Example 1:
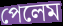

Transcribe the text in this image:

পেলেম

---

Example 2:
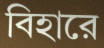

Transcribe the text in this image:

বিহারে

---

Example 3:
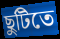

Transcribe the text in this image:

ছুটিতে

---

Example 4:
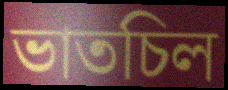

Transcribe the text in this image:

ভাতচিল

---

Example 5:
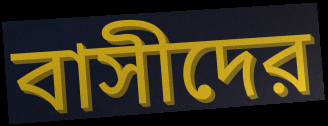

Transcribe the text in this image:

বাসীদের